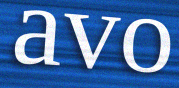
avo